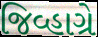
જિવ્હાગ્રે